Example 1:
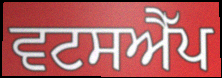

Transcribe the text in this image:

ਵਟਸਐੱਪ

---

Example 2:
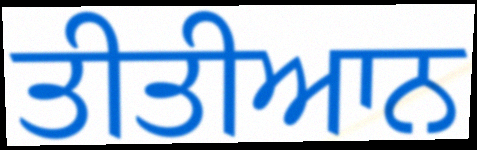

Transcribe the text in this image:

ਤੀਤੀਆਨ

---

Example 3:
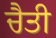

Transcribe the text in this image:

ਚੈਤੀ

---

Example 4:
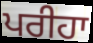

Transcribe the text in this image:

ਪਰੀਹਾ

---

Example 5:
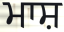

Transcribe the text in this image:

ਮਾਸ਼